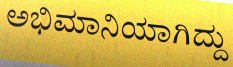
ಅಭಿಮಾನಿಯಾಗಿದ್ದು